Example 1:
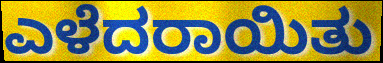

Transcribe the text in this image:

ಎಳೆದರಾಯಿತು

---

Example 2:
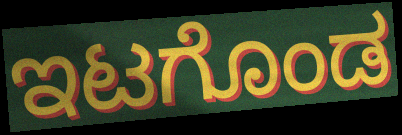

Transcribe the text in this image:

ಇಟಗೊಂಡ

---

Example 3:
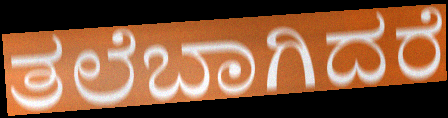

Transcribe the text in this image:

ತಲೆಬಾಗಿದರೆ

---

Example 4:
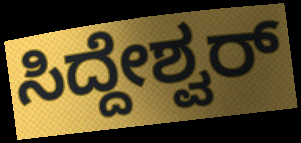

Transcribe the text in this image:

ಸಿದ್ದೇಶ್ವರ್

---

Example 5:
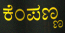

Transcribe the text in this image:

ಕೆಂಪಣ್ಣ